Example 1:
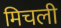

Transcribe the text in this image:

मिचली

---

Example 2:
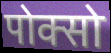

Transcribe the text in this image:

पोक्सो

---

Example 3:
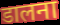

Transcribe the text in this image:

डालना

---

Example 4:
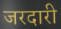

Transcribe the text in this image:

जरदारी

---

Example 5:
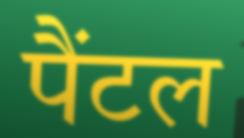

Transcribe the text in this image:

पैंटल